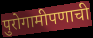
पुरोगामीपणाची